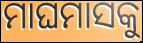
ମାଘମାସକୁ